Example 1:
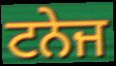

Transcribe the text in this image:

ਟਨੇਜ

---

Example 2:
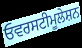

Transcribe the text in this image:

ਓਵਰਸਟੀਮੂਲੇਸ਼ਨ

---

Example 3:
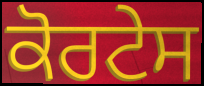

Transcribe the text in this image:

ਕੋਰਟੇਸ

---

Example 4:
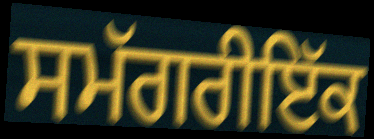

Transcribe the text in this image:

ਸਮੱਗਰੀਇੱਕ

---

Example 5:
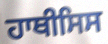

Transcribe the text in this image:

ਹਾਥੀਸਿਸ